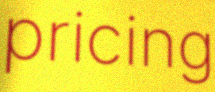
pricing